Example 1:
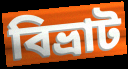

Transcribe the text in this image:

বিভ্রাট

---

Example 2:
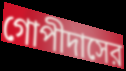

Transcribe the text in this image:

গোপীদাসের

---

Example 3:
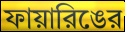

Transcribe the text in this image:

ফায়ারিঙের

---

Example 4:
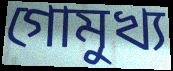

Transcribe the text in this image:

গোমুখ্য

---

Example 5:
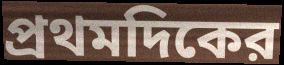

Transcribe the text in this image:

প্রথমদিকের